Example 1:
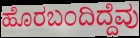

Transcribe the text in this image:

ಹೊರಬಂದಿದ್ದೆವು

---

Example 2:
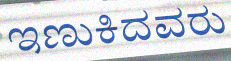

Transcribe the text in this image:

ಇಣುಕಿದವರು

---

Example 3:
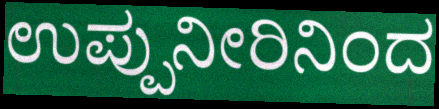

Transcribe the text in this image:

ಉಪ್ಪುನೀರಿನಿಂದ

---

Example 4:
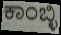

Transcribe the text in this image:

ಕಾಂಬ್ಳಿ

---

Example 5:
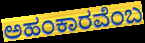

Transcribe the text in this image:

ಅಹಂಕಾರವೆಂಬ